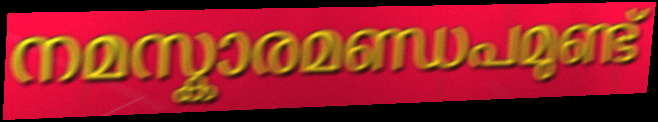
നമസ്കാരമണ്ഡപമുണ്ട്